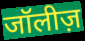
जॉलीज़